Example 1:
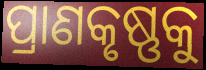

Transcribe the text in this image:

ପ୍ରାଣକୃଷ୍ଣକୁ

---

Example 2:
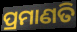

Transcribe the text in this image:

ପ୍ରମାଣତି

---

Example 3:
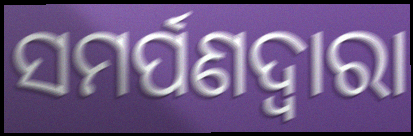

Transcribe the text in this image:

ସମର୍ପଣଦ୍ୱାରା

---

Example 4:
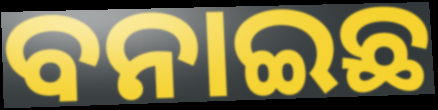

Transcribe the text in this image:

ବନାଇଛ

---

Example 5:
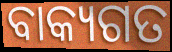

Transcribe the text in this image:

ବାକ୍ୟଗତ